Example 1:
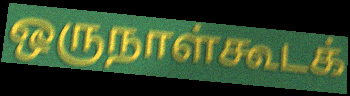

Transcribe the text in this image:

ஒருநாள்கூடக்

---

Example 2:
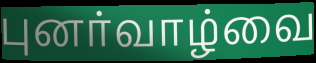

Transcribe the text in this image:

புனர்வாழ்வை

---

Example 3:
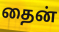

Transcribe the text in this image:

தைன்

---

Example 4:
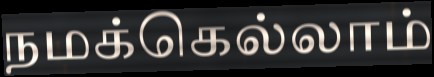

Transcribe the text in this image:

நமக்கெல்லாம்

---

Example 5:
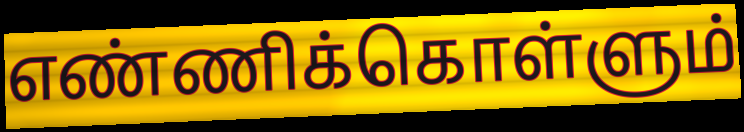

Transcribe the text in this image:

எண்ணிக்கொள்ளும்